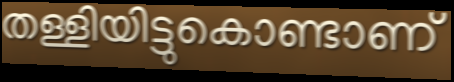
തള്ളിയിട്ടുകൊണ്ടാണ്